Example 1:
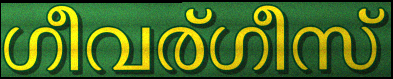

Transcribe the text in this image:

ഗീവര്ഗീസ്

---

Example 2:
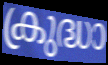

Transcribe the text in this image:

ക്രുദ്ധാ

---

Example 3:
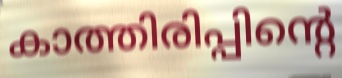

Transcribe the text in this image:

കാത്തിരിപ്പിന്റെ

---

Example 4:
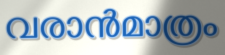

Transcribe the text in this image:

വരാൻമാത്രം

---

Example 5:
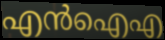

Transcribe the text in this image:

എൻഐഎ